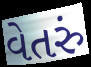
વેતરું